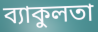
ব্যাকুলতা